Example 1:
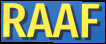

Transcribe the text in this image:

RAAF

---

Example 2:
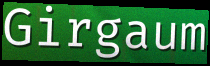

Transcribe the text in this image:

Girgaum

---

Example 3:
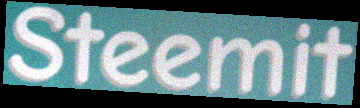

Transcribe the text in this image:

Steemit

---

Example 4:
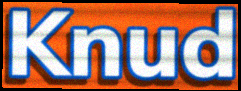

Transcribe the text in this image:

Knud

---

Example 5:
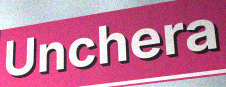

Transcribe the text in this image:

Unchera